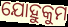
ଯୋହୁକୁମ